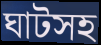
ঘাটসহ